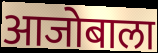
आजोबाला